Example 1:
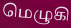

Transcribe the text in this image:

மெழுகி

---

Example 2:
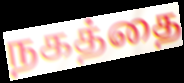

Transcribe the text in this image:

நகத்தை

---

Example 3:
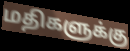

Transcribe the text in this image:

மதிகளுக்கு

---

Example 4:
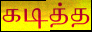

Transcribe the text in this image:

கடித்த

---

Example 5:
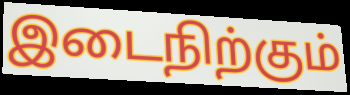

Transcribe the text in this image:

இடைநிற்கும்